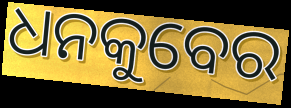
ଧନକୁବେର